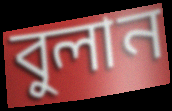
বুলান